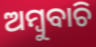
ଅମ୍ବୁବାଚି